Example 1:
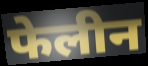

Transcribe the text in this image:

फेलीन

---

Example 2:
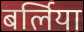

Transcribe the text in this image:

बर्लिया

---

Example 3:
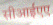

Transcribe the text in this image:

सीआईएए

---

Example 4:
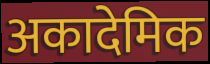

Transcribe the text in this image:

अकादेमिक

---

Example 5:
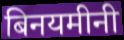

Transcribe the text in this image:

बिनयमीनी